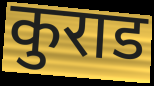
कुराड